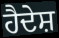
ਹੈਦੇਸ਼